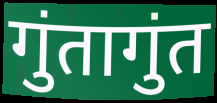
गुंतागुंत